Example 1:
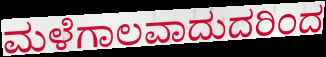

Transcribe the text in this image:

ಮಳೆಗಾಲವಾದುದರಿಂದ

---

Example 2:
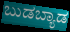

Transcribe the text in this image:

ಬುಡಬ್ಯಾಡ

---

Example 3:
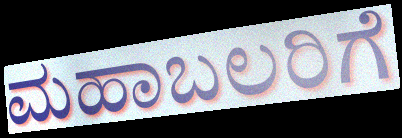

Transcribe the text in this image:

ಮಹಾಬಲರಿಗೆ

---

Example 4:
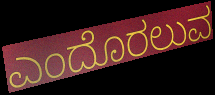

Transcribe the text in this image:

ಎಂದೊರಲುವ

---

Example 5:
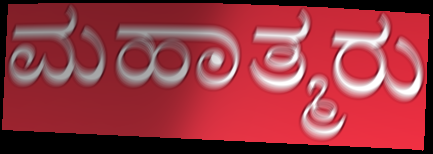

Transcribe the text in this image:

ಮಹಾತ್ಮರು